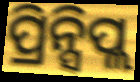
ପ୍ରିନ୍ସିପ୍ଲ